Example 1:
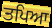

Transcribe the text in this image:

ਤਪਿਆ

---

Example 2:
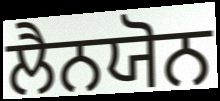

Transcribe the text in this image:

ਲੈਨਯੋਨ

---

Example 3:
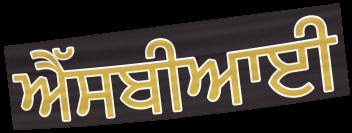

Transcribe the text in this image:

ਐੱਸਬੀਆਈ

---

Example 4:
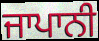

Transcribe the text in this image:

ਜਾਪਾਨੀ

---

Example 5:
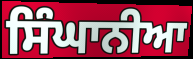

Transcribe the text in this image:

ਸਿੰਘਾਨੀਆ